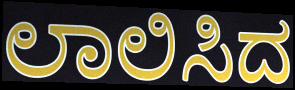
ಲಾಲಿಸಿದ